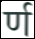
र्ण